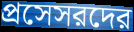
প্রসেসরদের